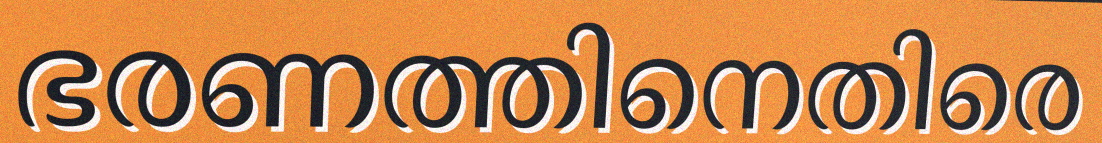
ഭരണത്തിനെതിരെ